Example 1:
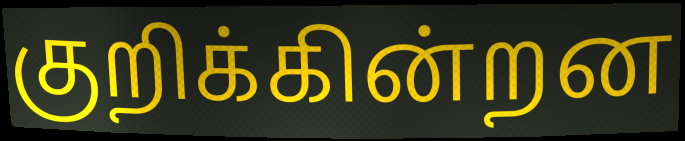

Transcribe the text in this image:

குறிக்கின்றன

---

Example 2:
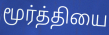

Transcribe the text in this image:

மூர்த்தியை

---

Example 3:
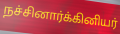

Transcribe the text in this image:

நச்சினார்க்கினியர்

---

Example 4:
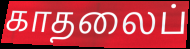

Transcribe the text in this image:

காதலைப்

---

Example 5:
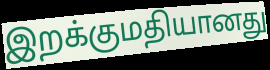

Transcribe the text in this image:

இறக்குமதியானது